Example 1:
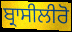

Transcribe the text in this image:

ਬ੍ਰਾਸੀਲੀਰੋ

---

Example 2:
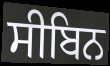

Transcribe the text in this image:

ਸੀਬਿਨ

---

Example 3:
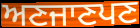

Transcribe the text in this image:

ਅਣਜਾਣਪਣ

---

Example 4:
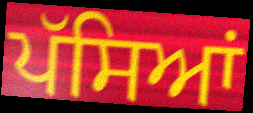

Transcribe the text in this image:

ਪੱਸਿਆਂ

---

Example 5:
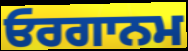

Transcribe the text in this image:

ਓਰਗਾਨਮ